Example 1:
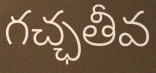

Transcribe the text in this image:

గచ్ఛతీవ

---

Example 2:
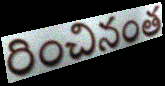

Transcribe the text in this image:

రించినంత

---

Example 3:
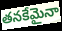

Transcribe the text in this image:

తనకేమైనా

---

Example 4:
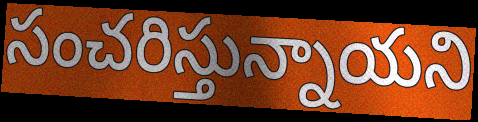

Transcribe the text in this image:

సంచరిస్తున్నాయని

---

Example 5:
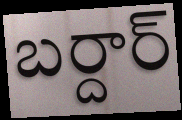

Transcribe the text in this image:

బర్దార్